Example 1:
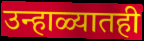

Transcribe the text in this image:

उन्हाळ्यातही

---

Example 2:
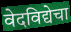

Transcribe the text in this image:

वेदविद्येचा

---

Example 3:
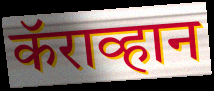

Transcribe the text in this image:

कॅराव्हान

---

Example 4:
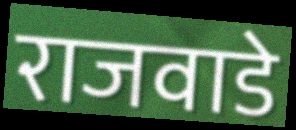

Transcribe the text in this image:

राजवाडे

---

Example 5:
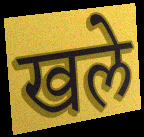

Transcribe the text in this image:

खले